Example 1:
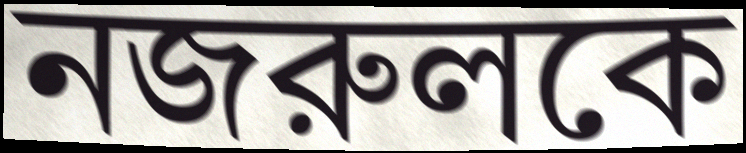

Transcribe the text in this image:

নজরুলকে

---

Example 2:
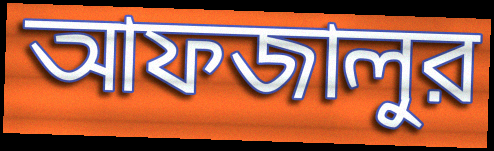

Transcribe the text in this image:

আফজালুর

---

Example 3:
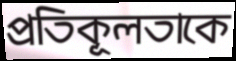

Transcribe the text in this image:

প্রতিকূলতাকে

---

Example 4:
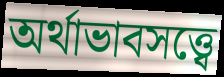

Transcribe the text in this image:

অর্থাভাবসত্ত্বে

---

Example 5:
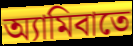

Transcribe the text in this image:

অ্যামিবাতে